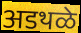
अडथळे